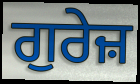
ਗੁਰੇਜ਼